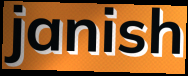
janish